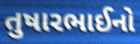
તુષારભાઈનો